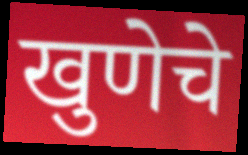
खुणेचे